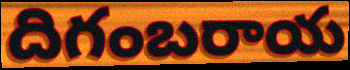
దిగంబరాయ